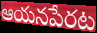
ఆయనపేరట